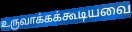
உருவாக்கக்கூடியவை